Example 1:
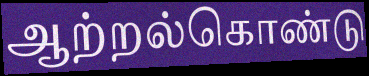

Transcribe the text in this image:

ஆற்றல்கொண்டு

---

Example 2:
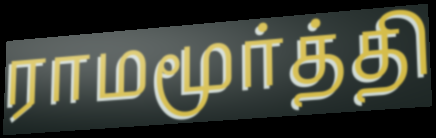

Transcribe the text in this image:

ராமமூர்த்தி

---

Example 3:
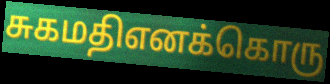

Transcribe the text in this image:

சுகமதிஎனக்கொரு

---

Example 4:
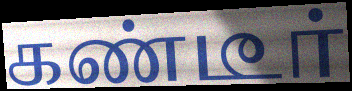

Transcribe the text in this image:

கண்டீர்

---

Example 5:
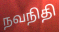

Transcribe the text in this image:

நவநிதி